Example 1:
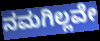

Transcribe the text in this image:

ನಮಗಿಲ್ಲವೇ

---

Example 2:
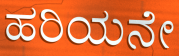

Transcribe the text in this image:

ಹರಿಯನೇ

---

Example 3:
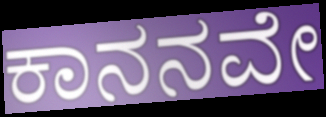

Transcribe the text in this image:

ಕಾನನವೇ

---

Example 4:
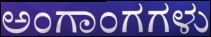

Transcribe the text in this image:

ಅಂಗಾಂಗಗಳು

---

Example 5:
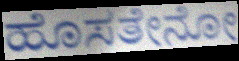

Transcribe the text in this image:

ಹೊಸತೇನೋ